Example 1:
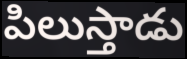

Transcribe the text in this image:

పిలుస్తాడు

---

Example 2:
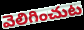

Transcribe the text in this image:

వెలిగించుట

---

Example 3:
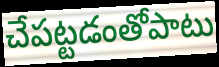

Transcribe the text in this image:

చేపట్టడంతోపాటు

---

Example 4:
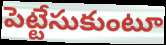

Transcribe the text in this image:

పెట్టేసుకుంటూ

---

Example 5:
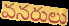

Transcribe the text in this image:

వనరులు